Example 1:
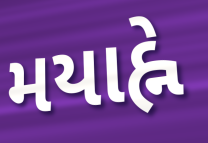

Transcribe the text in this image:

મયાહ્ને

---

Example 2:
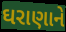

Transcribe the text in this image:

ઘરાણાને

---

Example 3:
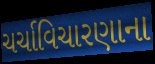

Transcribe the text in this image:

ચર્ચાવિચારણાના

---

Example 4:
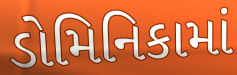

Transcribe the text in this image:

ડોમિનિકામાં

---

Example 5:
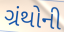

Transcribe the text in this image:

ગ્રંથોની